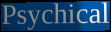
Psychical